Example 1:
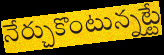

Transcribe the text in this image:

నేర్చుకొంటున్నట్టే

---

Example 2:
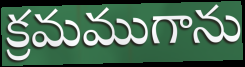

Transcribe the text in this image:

క్రమముగాను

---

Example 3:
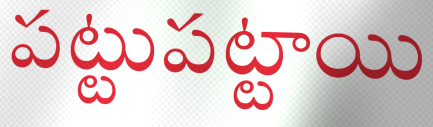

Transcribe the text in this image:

పట్టుపట్టాయి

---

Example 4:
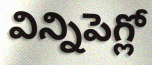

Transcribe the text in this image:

విన్నిపెగ్లో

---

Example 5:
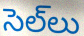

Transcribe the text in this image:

సెల్‌లు